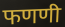
फणणी